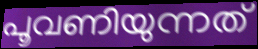
പൂവണിയുന്നത്